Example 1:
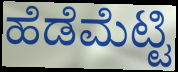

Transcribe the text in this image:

ಹೆಡೆಮೆಟ್ಟಿ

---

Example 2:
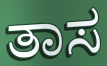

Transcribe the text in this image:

ತಾಸ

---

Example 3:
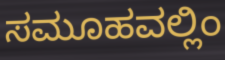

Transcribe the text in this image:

ಸಮೂಹವಲ್ಲಿಂ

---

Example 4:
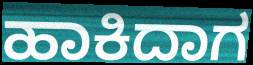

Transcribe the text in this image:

ಹಾಕಿದಾಗ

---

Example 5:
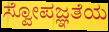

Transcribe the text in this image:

ಸ್ವೋಪಜ್ಞತೆಯ